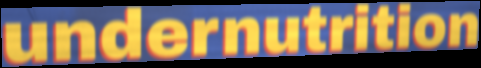
undernutrition